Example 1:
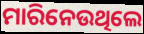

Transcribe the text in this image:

ମାରିନେଉଥିଲେ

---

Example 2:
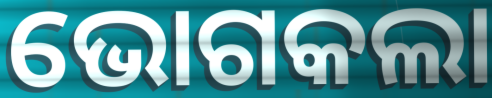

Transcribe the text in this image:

ଭୋଗକଲା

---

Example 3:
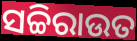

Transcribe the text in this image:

ସଚ୍ଚିରାଉତ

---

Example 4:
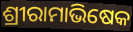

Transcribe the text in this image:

ଶ୍ରୀରାମାଭିଷେକ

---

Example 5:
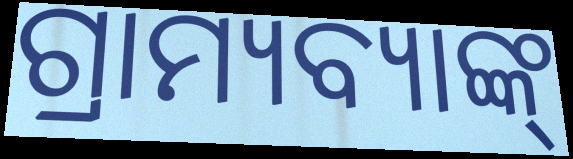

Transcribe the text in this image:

ଗ୍ରାମ୍ୟବ୍ୟାଙ୍କ୍